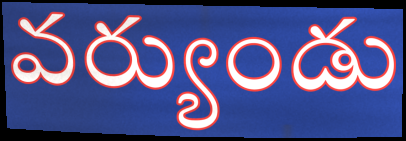
వర్యుండు